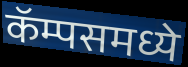
कॅम्पसमध्ये